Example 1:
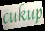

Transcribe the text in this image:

cukup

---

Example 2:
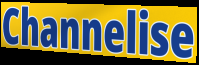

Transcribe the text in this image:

Channelise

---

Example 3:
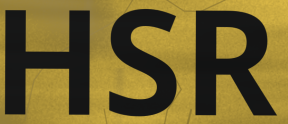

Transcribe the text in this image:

HSR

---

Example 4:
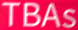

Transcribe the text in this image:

TBAs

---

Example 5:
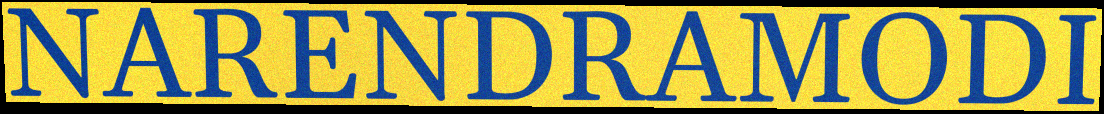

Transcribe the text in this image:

NARENDRAMODI